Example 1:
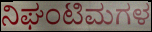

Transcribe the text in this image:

ನಿಘಂಟಿಮಗಳ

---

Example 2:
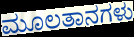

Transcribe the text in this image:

ಮೂಲತಾನಗಳು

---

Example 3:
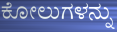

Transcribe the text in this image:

ಕೋಲುಗಳನ್ನು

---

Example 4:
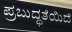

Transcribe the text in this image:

ಪ್ರಬುದ್ಧತೆಯಿದೆ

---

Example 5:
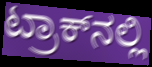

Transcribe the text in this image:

ಟ್ರಾಕ್‌ನಲ್ಲಿ